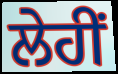
ਲੇਹੀਂ